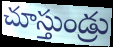
చూస్తుండ్రు